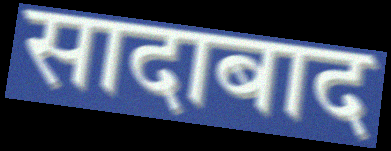
सादाबाद